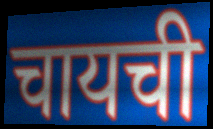
चायची